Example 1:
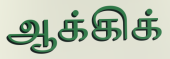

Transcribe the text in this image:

ஆக்கிக்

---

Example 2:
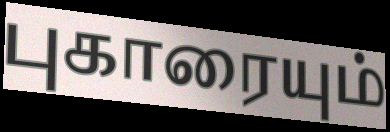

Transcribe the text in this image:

புகாரையும்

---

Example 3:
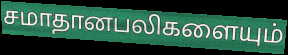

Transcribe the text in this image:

சமாதானபலிகளையும்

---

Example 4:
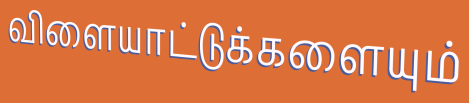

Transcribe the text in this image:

விளையாட்டுக்களையும்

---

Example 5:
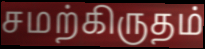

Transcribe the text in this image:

சமற்கிருதம்